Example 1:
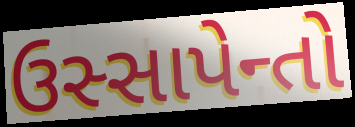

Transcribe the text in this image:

ઉસ્સાપેન્તો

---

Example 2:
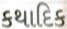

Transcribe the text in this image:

કથાદિક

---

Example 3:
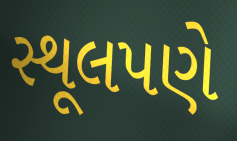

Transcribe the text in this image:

સ્થૂલપણે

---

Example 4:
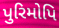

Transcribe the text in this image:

પુરિમોપિ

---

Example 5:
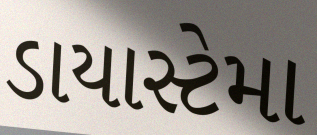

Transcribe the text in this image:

ડાયાસ્ટેમા